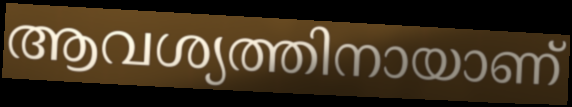
ആവശ്യത്തിനായാണ്